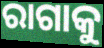
ରାଗାକୁ